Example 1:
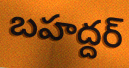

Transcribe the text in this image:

బహద్దర్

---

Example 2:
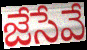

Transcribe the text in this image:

జేసేవే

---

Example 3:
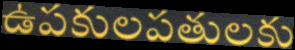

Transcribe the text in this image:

ఉపకులపతులకు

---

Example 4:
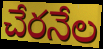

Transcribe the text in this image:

చేరనేల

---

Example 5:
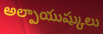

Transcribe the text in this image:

అల్పాయుష్కులు